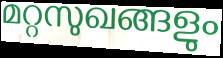
മറ്റസുഖങ്ങളും